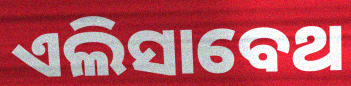
ଏଲିସାବେଥ